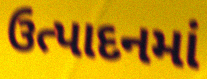
ઉત્પાદનમાં